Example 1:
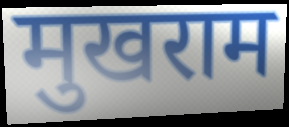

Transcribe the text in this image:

मुखराम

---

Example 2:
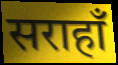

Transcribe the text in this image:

सराहाँ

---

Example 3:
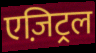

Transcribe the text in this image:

एज़िट्रल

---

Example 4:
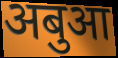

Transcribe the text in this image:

अबुआ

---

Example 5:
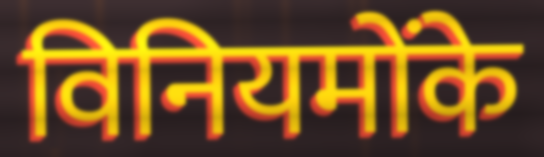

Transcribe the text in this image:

विनियमोंके